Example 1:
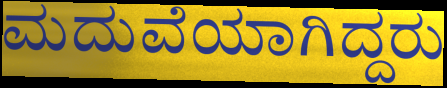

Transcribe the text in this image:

ಮದುವೆಯಾಗಿದ್ದರು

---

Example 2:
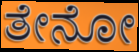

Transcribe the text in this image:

ತೇನೋ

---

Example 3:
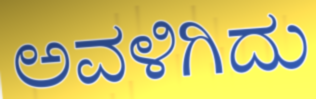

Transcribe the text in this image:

ಅವಳಿಗಿದು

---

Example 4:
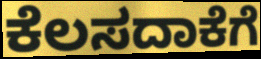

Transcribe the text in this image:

ಕೆಲಸದಾಕೆಗೆ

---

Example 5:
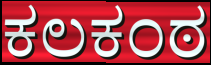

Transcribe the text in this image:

ಕಲಕಂಠ